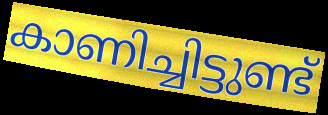
കാണിച്ചിട്ടുണ്ട്